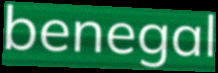
benegal